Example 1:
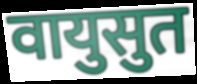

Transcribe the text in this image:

वायुसुत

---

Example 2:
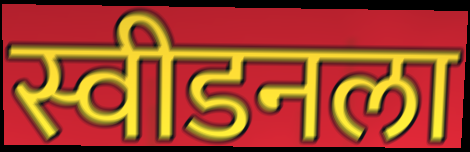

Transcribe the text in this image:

स्वीडनला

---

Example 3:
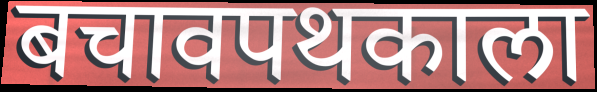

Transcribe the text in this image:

बचावपथकाला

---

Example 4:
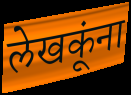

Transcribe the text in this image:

लेखकूंना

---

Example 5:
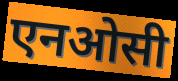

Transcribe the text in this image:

एनओसी